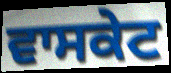
ਵਾਸਕੇਟ